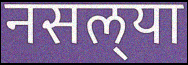
नसल्या